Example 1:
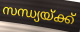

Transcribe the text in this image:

സന്ധ്യയ്ക്ക്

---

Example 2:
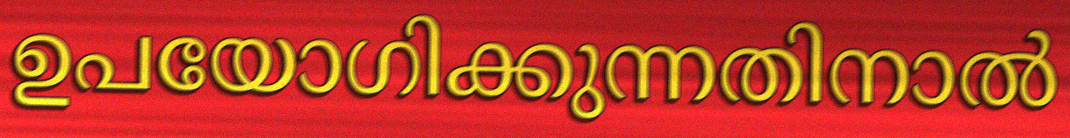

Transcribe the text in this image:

ഉപയോഗിക്കുന്നതിനാൽ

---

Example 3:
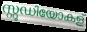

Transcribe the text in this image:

സ്റ്റുഡിയോകള്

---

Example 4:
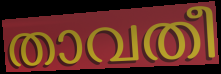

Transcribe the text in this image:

താവതീ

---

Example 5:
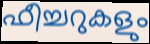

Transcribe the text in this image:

ഫീച്ചറുകളും